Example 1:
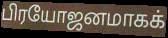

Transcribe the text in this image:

பிரயோஜனமாகக்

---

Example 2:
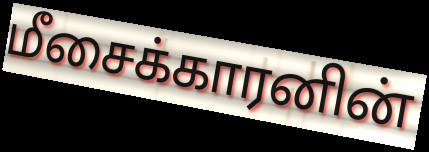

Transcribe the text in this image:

மீசைக்காரனின்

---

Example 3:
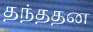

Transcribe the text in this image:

தந்ததன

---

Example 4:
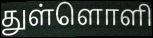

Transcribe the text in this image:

துள்ளொளி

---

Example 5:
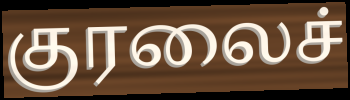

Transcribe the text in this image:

குரலைச்